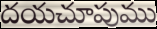
దయచూపుము